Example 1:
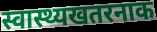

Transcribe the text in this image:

स्वास्थ्यखतरनाक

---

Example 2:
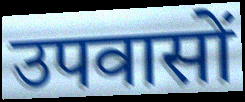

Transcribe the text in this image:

उपवासों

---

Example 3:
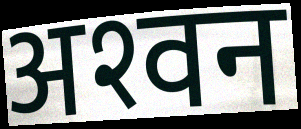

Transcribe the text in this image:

अश्वन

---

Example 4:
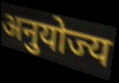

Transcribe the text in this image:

अनुयोज्य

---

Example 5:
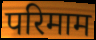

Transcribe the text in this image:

परिमाम